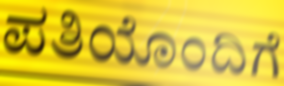
ಪತಿಯೊಂದಿಗೆ